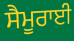
ਸੈਮੂਰਾਈ